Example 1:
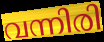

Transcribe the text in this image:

വന്നിരി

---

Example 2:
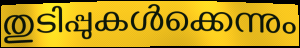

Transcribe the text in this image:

തുടിപ്പുകൾക്കെന്നും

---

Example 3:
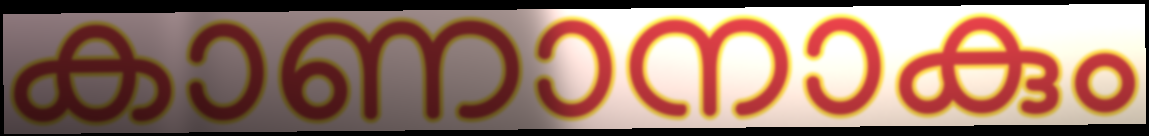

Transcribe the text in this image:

കാണാനാകും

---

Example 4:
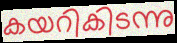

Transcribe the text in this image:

കയറികിടന്നു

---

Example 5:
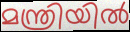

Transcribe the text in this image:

മന്ത്രിയിൽ